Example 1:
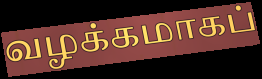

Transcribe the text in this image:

வழக்கமாகப்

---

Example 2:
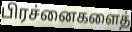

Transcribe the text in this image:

பிரச்னைகளைத்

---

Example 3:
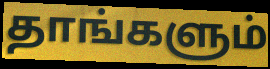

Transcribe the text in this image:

தாங்களும்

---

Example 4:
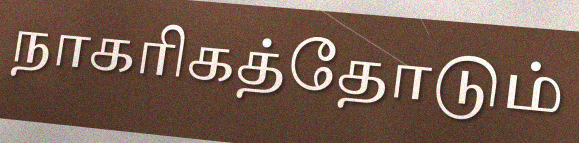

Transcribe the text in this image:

நாகரிகத்தோடும்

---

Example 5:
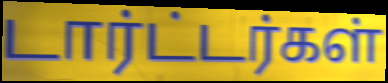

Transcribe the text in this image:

டார்ட்டர்கள்